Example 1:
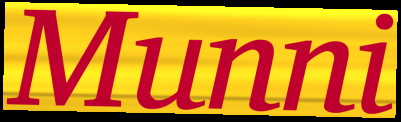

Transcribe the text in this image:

Munni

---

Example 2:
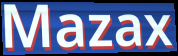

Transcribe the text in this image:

Mazax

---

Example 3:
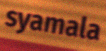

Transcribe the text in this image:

syamala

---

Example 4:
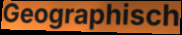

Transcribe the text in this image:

Geographisch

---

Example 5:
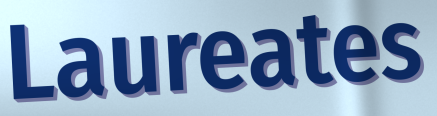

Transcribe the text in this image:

Laureates